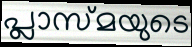
പ്ലാസ്മയുടെ